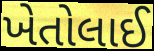
ખેતોલાઈ